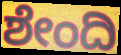
ಶೇಂದಿ